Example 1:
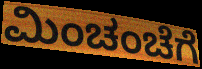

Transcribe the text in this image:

ಮಿಂಚಂಚೆಗೆ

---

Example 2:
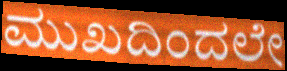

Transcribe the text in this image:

ಮುಖದಿಂದಲೇ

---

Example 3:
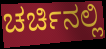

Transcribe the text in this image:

ಚರ್ಚಿನಲ್ಲಿ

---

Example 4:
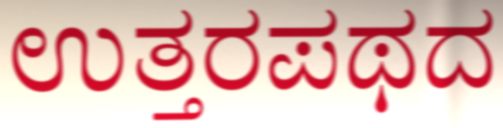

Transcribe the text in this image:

ಉತ್ತರಪಥದ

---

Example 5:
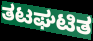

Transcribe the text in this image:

ತಟಘಟಿತ